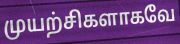
முயற்சிகளாகவே